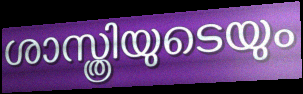
ശാസ്ത്രിയുടെയും